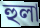
হুলা